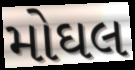
મોઘલ